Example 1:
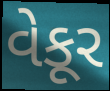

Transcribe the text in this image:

વેકૂર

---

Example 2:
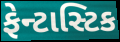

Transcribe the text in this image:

ફેન્ટાસ્ટિક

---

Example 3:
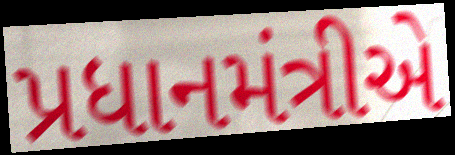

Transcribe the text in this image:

પ્રધાનમંત્રીએ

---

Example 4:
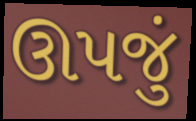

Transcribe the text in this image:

ઊપજું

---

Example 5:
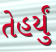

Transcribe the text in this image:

તેહર્યું